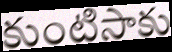
కుంటిసాకు